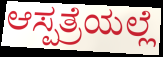
ಆಸ್ಪತ್ರೆಯಲ್ಲೆ